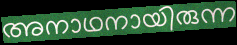
അനാഥനായിരുന്ന